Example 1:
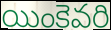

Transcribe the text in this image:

యింకెవరి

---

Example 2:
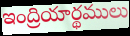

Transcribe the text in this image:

ఇంద్రియార్థములు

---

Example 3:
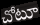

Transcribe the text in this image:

చోటూ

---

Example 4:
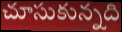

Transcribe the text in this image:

చూసుకున్నది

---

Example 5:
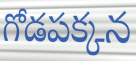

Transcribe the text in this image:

గోడపక్కన